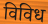
विविध